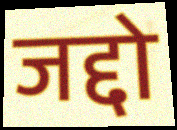
जद्दो